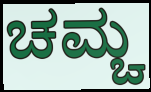
ಚಮ್ಚ